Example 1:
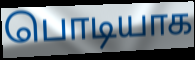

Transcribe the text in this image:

பொடியாக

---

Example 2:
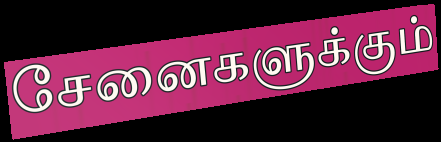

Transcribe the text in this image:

சேனைகளுக்கும்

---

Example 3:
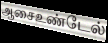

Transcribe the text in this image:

ஆசைஉண்டேல்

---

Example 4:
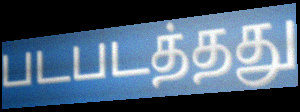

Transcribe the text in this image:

படபடத்தது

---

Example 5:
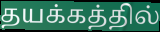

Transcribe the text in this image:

தயக்கத்தில்